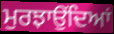
ਮੁਰਝਾਉਂਦਿਆਂ